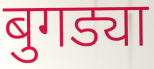
बुगड्या